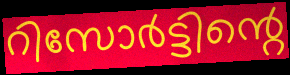
റിസോർട്ടിന്റെ